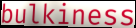
bulkiness